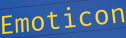
Emoticon